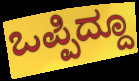
ಒಪ್ಪಿದ್ದೂ